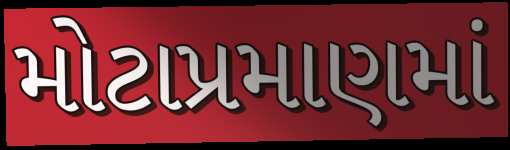
મોટાપ્રમાણમાં